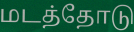
மடத்தோடு